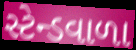
સ્ટેન્ડવાળા